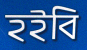
হইবি